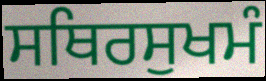
ਸਥਿਰਸੁਖਮੰ